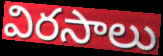
విరసాలు